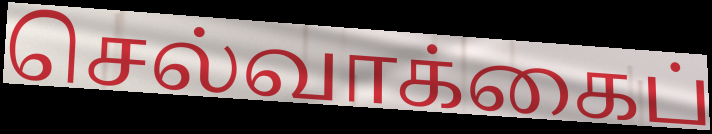
செல்வாக்கைப்